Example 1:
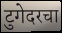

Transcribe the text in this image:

टुगेदरचा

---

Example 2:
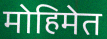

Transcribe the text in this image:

मोहिमेत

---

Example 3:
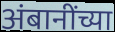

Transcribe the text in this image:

अंबानींच्या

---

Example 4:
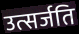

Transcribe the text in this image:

उत्सर्जति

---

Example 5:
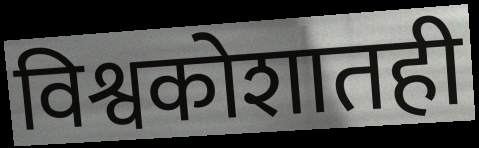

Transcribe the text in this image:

विश्वकोशातही